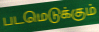
படமெடுக்கும்